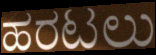
ಹರಟಲು